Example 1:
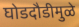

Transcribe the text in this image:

घोडदौडीमुळे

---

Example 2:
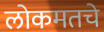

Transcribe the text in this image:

लोकमतचे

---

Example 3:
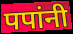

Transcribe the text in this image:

पपांनी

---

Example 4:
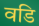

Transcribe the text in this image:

वडि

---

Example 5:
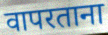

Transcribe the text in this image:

वापरताना